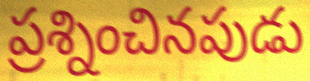
ప్రశ్నించినపుడు